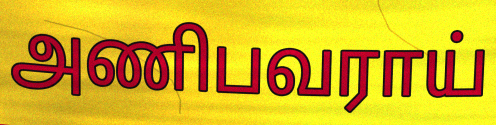
அணிபவராய்